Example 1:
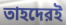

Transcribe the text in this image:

তাহদেরই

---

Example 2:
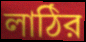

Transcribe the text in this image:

লাঠির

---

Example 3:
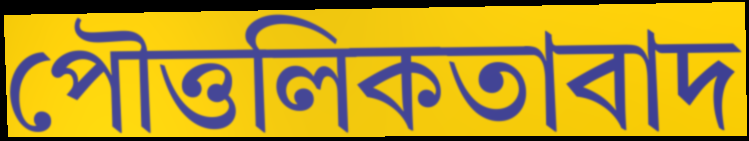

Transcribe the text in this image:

পৌত্তলিকতাবাদ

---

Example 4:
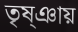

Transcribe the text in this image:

তৃষ্ঞায়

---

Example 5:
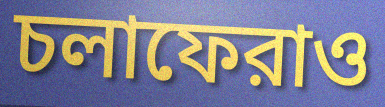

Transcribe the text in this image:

চলাফেরাও